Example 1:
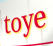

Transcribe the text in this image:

toye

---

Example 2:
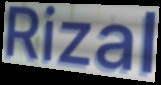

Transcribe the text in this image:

Rizal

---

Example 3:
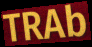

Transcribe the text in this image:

TRAb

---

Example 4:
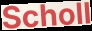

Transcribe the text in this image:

Scholl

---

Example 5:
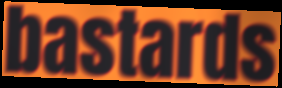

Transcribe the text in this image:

bastards